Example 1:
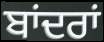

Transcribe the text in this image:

ਬਾਂਦਰਾਂ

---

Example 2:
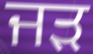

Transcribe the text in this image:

ਜੜ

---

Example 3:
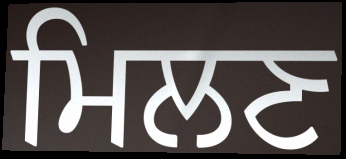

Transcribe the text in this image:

ਮਿਲਣ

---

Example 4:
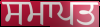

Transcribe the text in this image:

ਸਮਾਪਤ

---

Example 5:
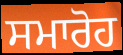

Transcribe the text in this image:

ਸਮਾਰੋਹ